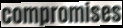
compromises